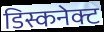
डिस्कनेक्ट